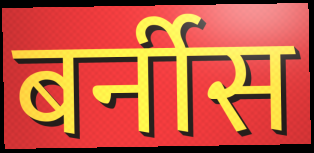
बर्नीस